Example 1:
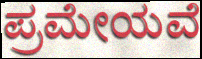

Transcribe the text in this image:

ಪ್ರಮೇಯವೆ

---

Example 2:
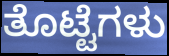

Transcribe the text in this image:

ತೊಟ್ಟೆಗಳು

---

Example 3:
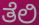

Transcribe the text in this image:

ತೆಲಿ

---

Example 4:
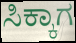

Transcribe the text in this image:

ಸಿಕ್ಕಾಗ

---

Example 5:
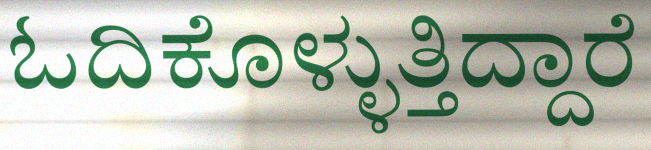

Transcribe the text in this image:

ಓದಿಕೊಳ್ಳುತ್ತಿದ್ದಾರೆ